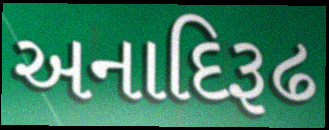
અનાદિરૂઢ